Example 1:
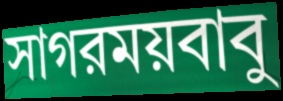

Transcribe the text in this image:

সাগরময়বাবু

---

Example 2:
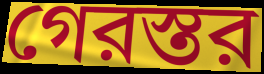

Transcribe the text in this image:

গেরস্তর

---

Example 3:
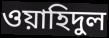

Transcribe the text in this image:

ওয়াহিদুল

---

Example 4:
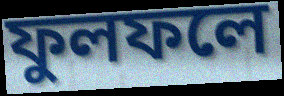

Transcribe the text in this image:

ফুলফলে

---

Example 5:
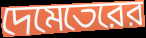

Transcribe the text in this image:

দেমেতেরের